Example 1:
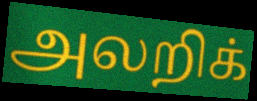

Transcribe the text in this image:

அலறிக்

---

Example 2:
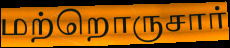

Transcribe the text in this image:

மற்றொருசார்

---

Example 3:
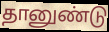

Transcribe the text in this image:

தானுண்டு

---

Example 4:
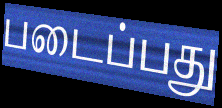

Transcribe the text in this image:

படைப்பது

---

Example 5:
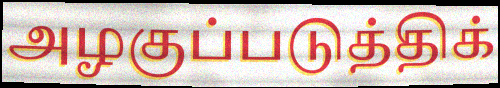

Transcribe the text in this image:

அழகுப்படுத்திக்